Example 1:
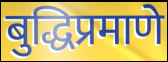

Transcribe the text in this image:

बुद्धिप्रमाणे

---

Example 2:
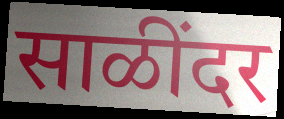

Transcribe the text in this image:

साळींदर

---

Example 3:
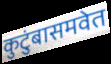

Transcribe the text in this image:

कुटुंबासमवेत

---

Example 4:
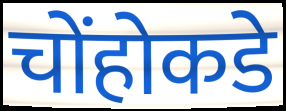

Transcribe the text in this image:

चोंहोकडे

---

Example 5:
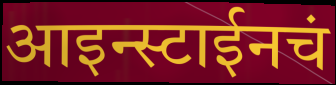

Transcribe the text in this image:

आइन्स्टाईनचं